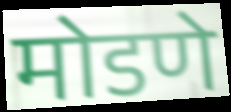
मोडणे